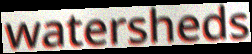
watersheds